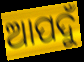
ଆପଦୁଁ